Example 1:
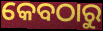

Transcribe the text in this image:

କେବଠାରୁ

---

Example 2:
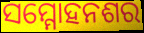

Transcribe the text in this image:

ସମ୍ମୋହନଶର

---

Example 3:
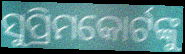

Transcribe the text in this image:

ସୁପ୍ରିମକୋର୍ଟଙ୍କୁ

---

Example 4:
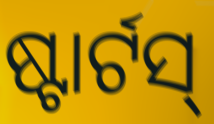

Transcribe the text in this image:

ଷ୍ଟାର୍ଟସ୍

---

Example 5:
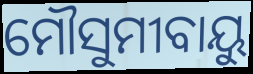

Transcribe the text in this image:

ମୌସୁମୀବାୟୁ